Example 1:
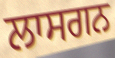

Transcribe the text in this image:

ਲਾਸਗਨ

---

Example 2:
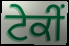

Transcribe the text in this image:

ਟੇਕੀਂ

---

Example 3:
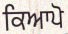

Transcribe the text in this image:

ਕਿਆਪੋ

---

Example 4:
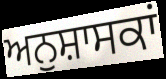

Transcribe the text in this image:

ਅਨੁਸ਼ਾਸਕਾਂ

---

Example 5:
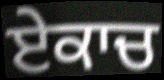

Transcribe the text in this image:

ਏਕਾਚ